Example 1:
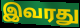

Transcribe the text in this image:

இவரது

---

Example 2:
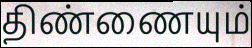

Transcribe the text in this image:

திண்ணையும்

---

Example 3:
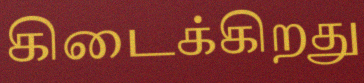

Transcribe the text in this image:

கிடைக்கிறது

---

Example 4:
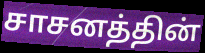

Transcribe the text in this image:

சாசனத்தின்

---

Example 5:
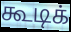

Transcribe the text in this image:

கூடிக்